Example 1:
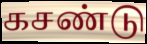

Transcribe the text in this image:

கசண்டு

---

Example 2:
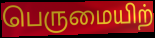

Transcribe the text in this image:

பெருமையிற்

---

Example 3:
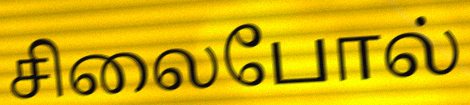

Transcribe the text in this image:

சிலைபோல்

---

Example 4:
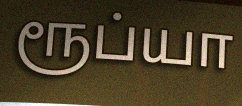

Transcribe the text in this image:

ரூப்யா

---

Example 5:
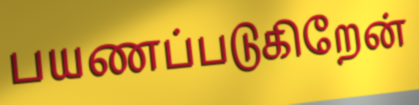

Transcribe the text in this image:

பயணப்படுகிறேன்